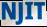
NJIT